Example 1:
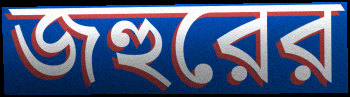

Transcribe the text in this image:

জহুরের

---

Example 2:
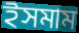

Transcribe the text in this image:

ইসমাম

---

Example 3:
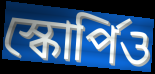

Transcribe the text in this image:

স্কোর্পিও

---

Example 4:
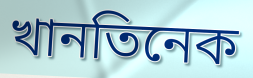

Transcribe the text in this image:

খানতিনেক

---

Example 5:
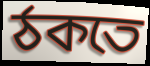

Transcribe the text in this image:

ঠকতে